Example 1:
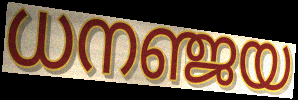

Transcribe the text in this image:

ധനഞ്ജയ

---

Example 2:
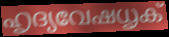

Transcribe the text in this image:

ഹൃദ്യവേഷധൃക്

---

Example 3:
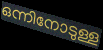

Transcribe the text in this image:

ഒന്നിനോടുള്ള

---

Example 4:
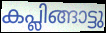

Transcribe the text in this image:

കപ്ലിങ്ങാട്ടു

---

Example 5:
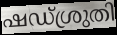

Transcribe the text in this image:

ഷഡ്ശ്രുതി